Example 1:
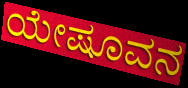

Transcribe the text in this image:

ಯೇಷೂವನ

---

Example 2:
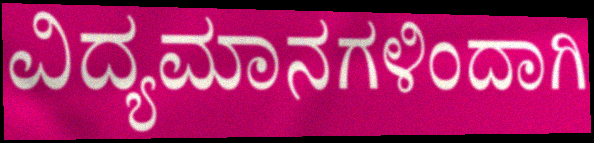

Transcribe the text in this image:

ವಿದ್ಯಮಾನಗಳಿಂದಾಗಿ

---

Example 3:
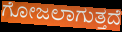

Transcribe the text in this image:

ಗೋಜಲಾಗುತ್ತದೆ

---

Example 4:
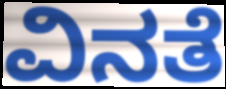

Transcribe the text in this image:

ವಿನತೆ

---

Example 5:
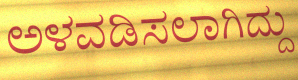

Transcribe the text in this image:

ಅಳವಡಿಸಲಾಗಿದ್ದು